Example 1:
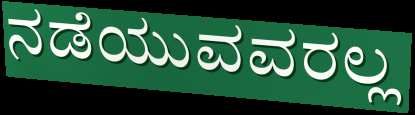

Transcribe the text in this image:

ನಡೆಯುವವರಲ್ಲ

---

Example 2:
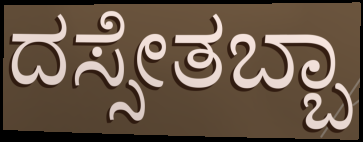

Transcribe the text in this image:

ದಸ್ಸೇತಬ್ಬಾ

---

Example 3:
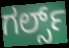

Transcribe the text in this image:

ಗರ್ಲ್ಸ್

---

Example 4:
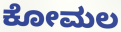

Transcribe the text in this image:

ಕೋಮಲ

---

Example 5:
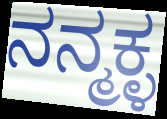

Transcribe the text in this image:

ನನ್ಮಕ್ಳ